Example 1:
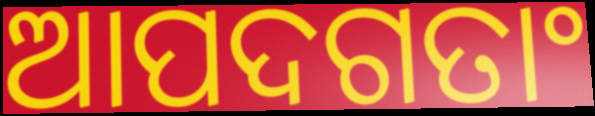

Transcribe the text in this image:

ଆପଦଗତାଂ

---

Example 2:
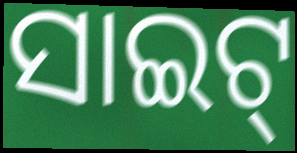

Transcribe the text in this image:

ସାଇଟ୍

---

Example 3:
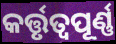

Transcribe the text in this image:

କର୍ତ୍ତୃତ୍ୱପୂର୍ଣ୍ଣ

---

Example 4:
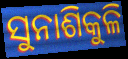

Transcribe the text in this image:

ସୁନାଶିକୁଳି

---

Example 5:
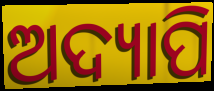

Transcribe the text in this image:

ଅଦ୍ୟାପି